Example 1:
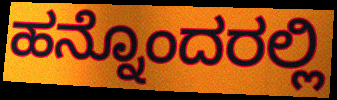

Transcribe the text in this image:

ಹನ್ನೊಂದರಲ್ಲಿ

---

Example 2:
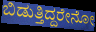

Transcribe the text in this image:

ಬಿಡುತ್ತಿದ್ದರೇನೋ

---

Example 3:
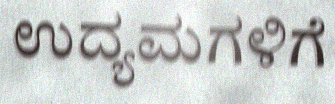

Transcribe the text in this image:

ಉದ್ಯಮಗಳಿಗೆ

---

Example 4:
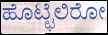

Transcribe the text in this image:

ಹೊಟ್ಟೆಲಿರೋ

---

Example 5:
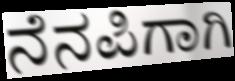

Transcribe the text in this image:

ನೆನಪಿಗಾಗಿ